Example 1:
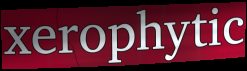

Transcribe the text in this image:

xerophytic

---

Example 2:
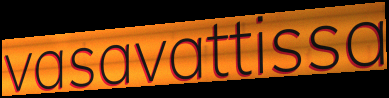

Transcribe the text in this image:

vasavattissa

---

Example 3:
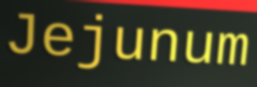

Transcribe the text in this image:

Jejunum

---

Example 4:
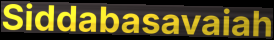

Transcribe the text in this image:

Siddabasavaiah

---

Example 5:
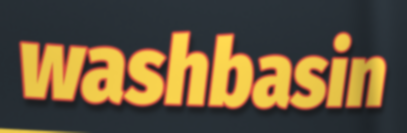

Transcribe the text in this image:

washbasin